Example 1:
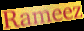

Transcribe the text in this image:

Rameez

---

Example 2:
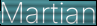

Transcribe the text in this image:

Martian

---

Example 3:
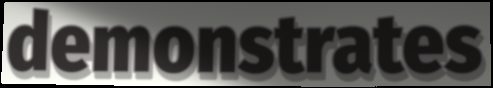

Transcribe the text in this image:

demonstrates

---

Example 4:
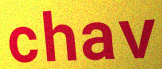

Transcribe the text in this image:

chav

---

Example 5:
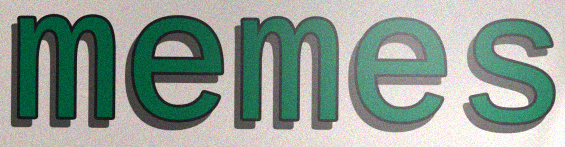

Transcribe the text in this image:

memes